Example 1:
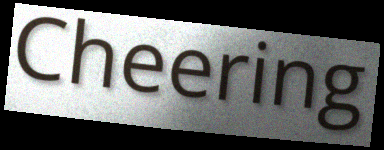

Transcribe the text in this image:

Cheering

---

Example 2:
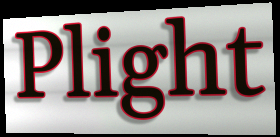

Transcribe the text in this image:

Plight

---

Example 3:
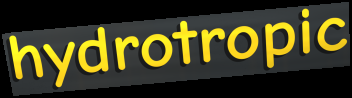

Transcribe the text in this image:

hydrotropic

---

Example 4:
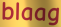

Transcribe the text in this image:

blaag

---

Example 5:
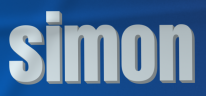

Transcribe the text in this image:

simon